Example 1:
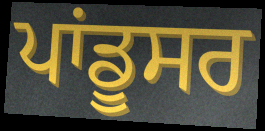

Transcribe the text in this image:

ਪਾਂਡੂਸਰ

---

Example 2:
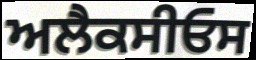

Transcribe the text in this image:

ਅਲੈਕਸੀਓਸ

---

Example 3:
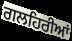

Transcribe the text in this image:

ਗਲਹਿਰੀਆਂ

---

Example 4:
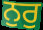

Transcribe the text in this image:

ਨੁਰੁ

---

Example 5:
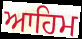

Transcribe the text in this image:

ਆਹਿਮ